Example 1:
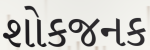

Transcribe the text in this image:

શોકજનક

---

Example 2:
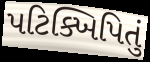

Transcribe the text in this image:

પટિક્ખિપિતું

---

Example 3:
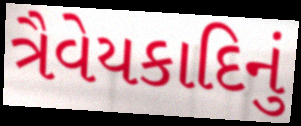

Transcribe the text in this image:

ત્રૈવેયકાદિનું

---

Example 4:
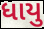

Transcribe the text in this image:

ધાયુ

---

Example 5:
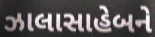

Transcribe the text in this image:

ઝાલાસાહેબને